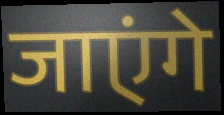
जाएंगे